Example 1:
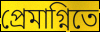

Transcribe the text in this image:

প্রেমাগ্নিতে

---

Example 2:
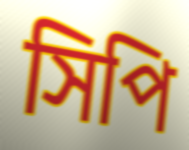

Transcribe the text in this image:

সিপি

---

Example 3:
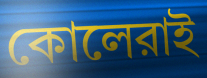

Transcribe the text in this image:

কোলেরাই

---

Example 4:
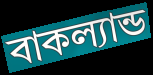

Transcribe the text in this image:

বাকল্যান্ড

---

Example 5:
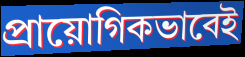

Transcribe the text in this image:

প্রায়োগিকভাবেই